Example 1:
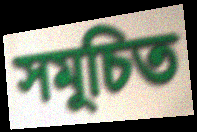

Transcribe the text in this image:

সমুচিত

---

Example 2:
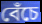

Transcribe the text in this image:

বেঁচে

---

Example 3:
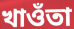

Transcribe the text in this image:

খাওঁতা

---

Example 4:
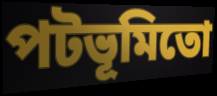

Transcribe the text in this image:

পটভূমিতো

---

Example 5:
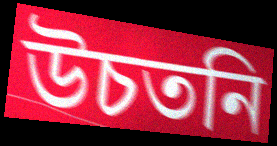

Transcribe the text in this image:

উচতনি